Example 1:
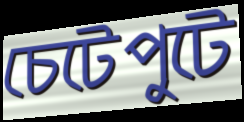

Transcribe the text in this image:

চেটেপুটে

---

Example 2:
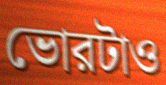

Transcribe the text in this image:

ভোরটাও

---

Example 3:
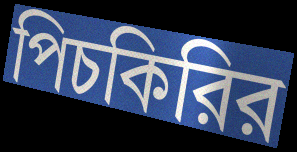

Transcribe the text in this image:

পিচকিরির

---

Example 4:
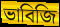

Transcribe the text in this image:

ভাবিজি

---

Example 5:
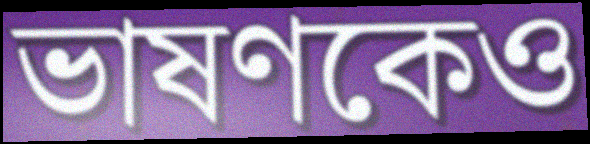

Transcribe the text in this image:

ভাষণকেও